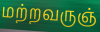
மற்றவருஞ்